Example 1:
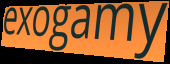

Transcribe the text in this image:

exogamy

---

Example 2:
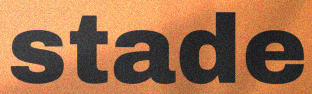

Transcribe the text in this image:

stade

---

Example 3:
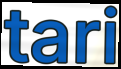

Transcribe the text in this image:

tari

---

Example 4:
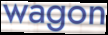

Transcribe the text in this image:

wagon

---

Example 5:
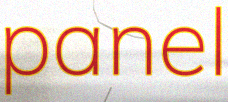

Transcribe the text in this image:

panel